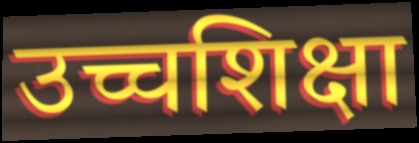
उच्चशिक्षा